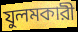
যুলমকারী